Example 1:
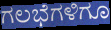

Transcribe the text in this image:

ಗಲಭೆಗಳಿಗೂ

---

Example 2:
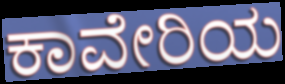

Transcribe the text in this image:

ಕಾವೇರಿಯ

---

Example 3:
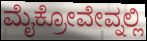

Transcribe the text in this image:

ಮೈಕ್ರೋವೇವ್ನಲ್ಲಿ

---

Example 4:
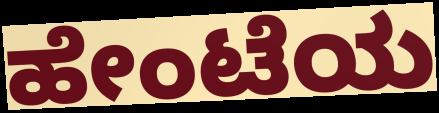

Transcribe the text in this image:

ಹೇಂಟೆಯ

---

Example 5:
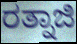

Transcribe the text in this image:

ರತ್ನಾಜಿ